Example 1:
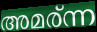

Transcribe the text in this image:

അമര്ന്ന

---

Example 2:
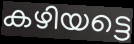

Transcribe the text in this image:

കഴിയട്ടെ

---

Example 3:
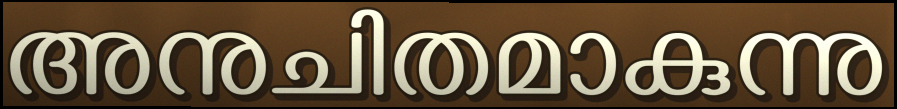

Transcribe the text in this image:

അനുചിതമാകുന്നു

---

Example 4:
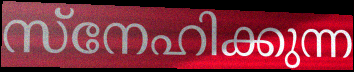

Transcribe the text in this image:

സ്നേഹിക്കുന്ന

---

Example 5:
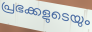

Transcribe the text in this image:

പ്രഭക്കളുടെയും